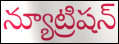
న్యూట్రిషన్